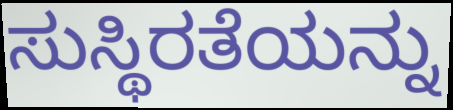
ಸುಸ್ಥಿರತೆಯನ್ನು